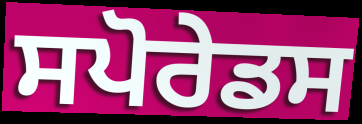
ਸਪੋਰੇਡਸ